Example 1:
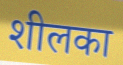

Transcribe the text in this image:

शीलका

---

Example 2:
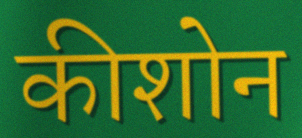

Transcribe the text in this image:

कीशोन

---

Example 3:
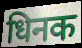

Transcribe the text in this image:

धिनक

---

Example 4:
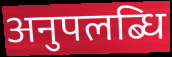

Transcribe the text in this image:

अनुपलब्धि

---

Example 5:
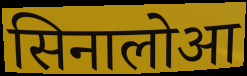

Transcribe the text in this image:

सिनालोआ